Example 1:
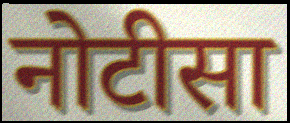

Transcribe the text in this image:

नोटीसा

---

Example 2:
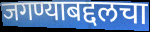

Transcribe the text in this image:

जगण्याबद्दलचा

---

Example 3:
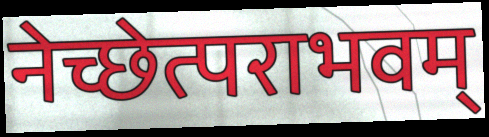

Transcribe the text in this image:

नेच्छेत्पराभवम्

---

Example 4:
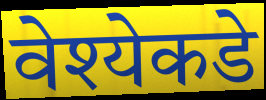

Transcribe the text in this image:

वेश्येकडे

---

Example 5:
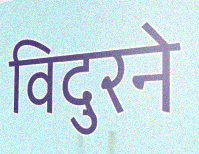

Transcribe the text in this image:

विदुरने